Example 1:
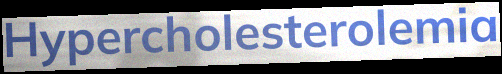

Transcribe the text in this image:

Hypercholesterolemia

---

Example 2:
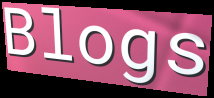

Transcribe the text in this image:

Blogs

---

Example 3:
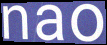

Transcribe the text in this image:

nao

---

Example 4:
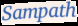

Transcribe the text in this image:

Sampath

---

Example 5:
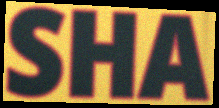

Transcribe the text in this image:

SHA